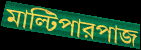
মাল্টিপারপাজ